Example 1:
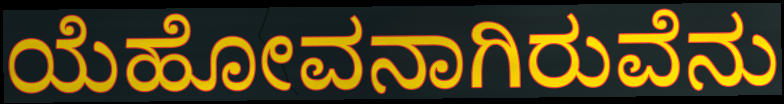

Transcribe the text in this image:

ಯೆಹೋವನಾಗಿರುವೆನು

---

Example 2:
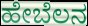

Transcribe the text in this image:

ಹೇಬೆಲನ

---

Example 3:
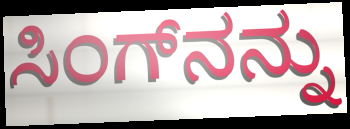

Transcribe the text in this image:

ಸಿಂಗ್‌ನನ್ನು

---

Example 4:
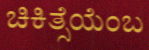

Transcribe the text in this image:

ಚಿಕಿತ್ಸೆಯೆಂಬ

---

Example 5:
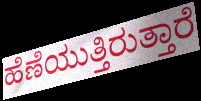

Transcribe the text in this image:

ಹೆಣೆಯುತ್ತಿರುತ್ತಾರೆ